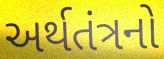
અર્થતંત્રનો